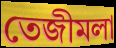
তেজীমলা